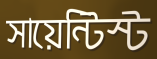
সায়েন্টিস্ট